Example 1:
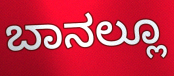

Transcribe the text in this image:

ಬಾನಲ್ಲೂ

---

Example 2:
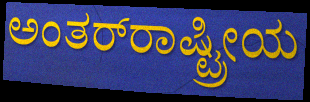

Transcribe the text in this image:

ಅಂತರ್‌ರಾಷ್ಟ್ರೀಯ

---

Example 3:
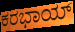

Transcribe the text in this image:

ಕರಭಾಯ್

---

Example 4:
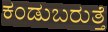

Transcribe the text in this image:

ಕಂಡುಬರುತ್ತೆ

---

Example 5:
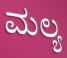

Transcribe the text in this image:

ಮಲ್ಯ